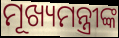
ମୂଖ୍ୟମନ୍ତ୍ରୀଙ୍କ